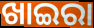
ଖାଇରା